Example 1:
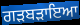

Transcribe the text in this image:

ਗੜਬੜਾਇਆ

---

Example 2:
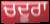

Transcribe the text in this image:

ਚਦੂਰਾ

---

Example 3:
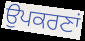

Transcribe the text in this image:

ਉਪਕਰਣਾਂ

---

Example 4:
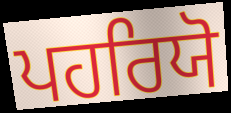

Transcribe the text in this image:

ਪਹਰਿਯੋ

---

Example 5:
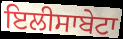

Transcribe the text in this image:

ਇਲੀਸਾਬੇਟਾ